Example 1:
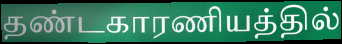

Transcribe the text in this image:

தண்டகாரணியத்தில்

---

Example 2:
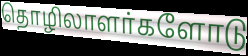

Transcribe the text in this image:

தொழிலாளர்களோடு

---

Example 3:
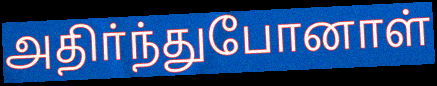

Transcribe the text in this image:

அதிர்ந்துபோனாள்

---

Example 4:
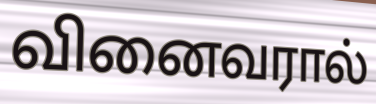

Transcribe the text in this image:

வினைவரால்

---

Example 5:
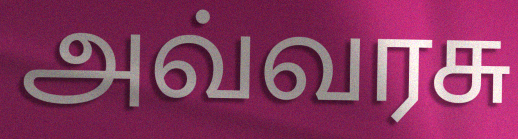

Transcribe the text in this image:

அவ்வரசு